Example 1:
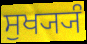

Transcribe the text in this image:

ਸੁਖ੍ਯ੍ਯੰ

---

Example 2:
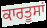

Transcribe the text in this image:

ਕਾਰਤੂਸਾਂ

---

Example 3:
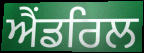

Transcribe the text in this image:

ਐਂਡਰਿਲ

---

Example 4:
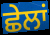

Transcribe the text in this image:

ਛੇਲਾਂ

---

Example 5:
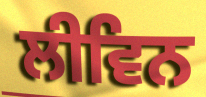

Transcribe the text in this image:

ਲੀਵਿਨ